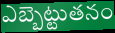
ఎబ్బెట్టుతనం